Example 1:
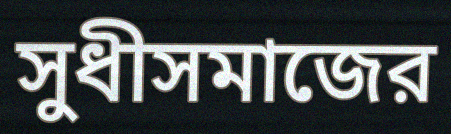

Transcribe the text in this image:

সুধীসমাজের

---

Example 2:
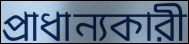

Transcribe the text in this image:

প্রাধান্যকারী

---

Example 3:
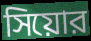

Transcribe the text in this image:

সিয়োর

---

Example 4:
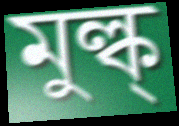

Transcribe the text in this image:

মুল্ক্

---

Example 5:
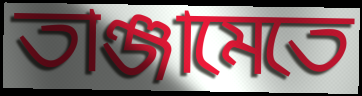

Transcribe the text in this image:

তাঞ্জামেতে